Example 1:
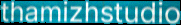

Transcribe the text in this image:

thamizhstudio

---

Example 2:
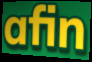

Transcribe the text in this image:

afin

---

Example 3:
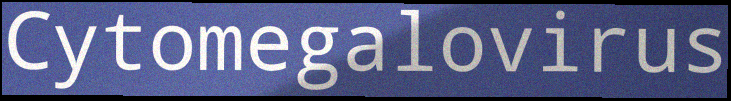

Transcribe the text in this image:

Cytomegalovirus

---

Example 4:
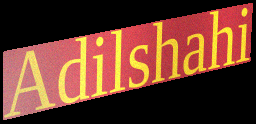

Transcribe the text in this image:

Adilshahi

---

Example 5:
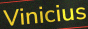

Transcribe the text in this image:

Vinicius